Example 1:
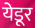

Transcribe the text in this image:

येडूर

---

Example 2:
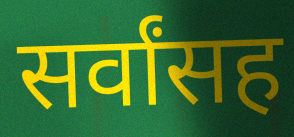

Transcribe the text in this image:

सर्वांसह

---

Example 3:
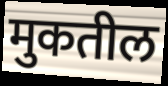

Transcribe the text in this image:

मुकतील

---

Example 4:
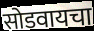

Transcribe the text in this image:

सोडवायचा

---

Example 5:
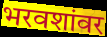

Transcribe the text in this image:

भरवशांवर